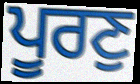
ਪੂਰਣੁ